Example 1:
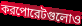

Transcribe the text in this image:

করপোরেটগুলোও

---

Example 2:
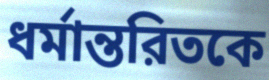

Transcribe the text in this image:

ধর্মান্তরিতকে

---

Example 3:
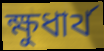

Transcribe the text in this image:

ক্ষুধার্থ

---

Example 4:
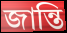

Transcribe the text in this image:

জান্তি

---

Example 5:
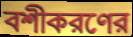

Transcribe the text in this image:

বশীকরণের